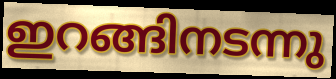
ഇറങ്ങിനടന്നു